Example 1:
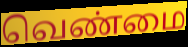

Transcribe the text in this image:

வெண்மை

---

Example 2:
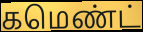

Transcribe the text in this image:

கமெண்ட்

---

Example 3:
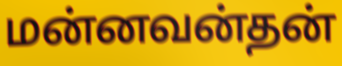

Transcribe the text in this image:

மன்னவன்தன்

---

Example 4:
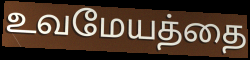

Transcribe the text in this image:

உவமேயத்தை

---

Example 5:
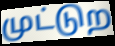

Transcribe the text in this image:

முட்டுற